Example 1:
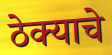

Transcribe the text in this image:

ठेक्याचे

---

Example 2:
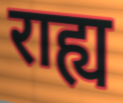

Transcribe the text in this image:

राह्य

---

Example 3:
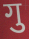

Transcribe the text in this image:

गु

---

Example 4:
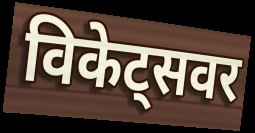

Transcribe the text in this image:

विकेट्सवर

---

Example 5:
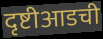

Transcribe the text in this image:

दृष्टीआडची